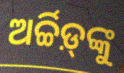
ଅର୍ଚ୍ଚିଡ଼୍‌ଙ୍କୁ